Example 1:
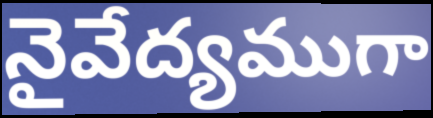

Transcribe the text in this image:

నైవేద్యముగా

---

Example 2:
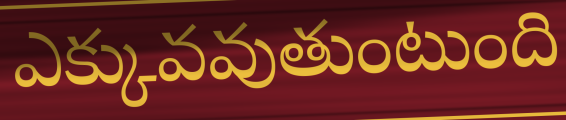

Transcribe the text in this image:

ఎక్కువవుతుంటుంది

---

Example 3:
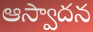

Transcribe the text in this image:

ఆస్వాదన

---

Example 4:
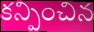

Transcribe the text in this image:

కన్పించిన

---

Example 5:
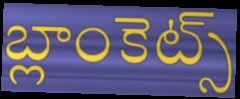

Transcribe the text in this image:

బ్లాంకెట్స్